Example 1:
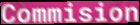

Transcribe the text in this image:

Commision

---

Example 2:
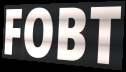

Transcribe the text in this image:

FOBT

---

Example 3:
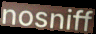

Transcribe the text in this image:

nosniff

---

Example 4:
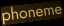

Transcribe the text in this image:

phoneme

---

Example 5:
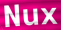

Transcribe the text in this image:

Nux